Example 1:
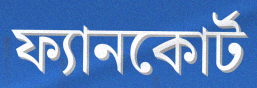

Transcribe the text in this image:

ফ্যানকোর্ট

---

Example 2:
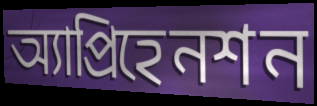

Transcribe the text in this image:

অ্যাপ্রিহেনশন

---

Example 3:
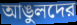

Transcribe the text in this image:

আঙুলদের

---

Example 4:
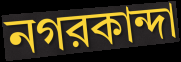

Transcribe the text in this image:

নগরকান্দা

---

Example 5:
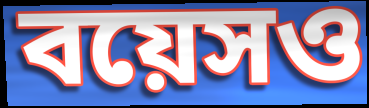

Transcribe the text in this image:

বয়েসও